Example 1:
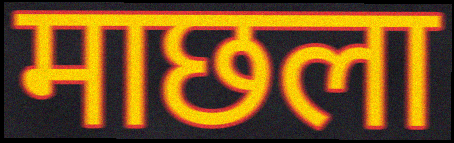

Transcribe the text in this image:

माछला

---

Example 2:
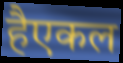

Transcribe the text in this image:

हैएकल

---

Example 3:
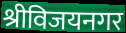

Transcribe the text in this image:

श्रीविजयनगर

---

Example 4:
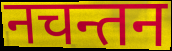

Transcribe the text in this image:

नचन्तन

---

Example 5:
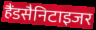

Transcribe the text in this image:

हैंडसैनिटाइजर